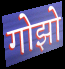
गोझो